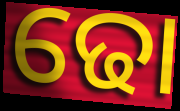
ଢୋ